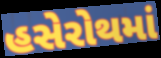
હસેરોથમાં